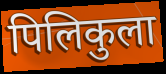
पिलिकुला